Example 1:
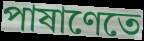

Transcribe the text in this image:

পাষাণেতে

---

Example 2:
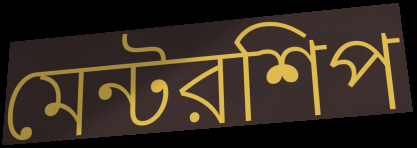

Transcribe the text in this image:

মেন্টরশিপ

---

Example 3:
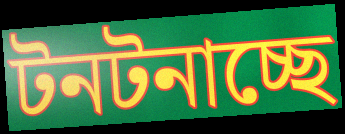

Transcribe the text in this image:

টনটনাচ্ছে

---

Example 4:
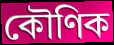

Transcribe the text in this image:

কৌণিক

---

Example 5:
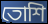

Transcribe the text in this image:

তোশি